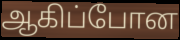
ஆகிப்போன